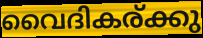
വൈദികര്ക്കു